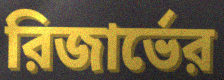
রিজার্ভের